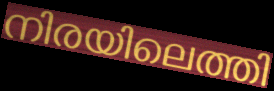
നിരയിലെത്തി